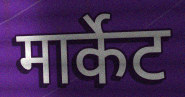
मार्केट